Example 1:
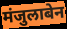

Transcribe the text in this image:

मंजुलाबेन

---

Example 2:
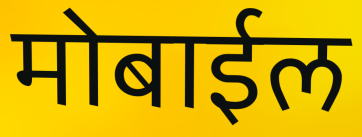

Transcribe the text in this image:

मोबाईल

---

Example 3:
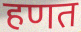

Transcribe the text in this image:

हणत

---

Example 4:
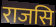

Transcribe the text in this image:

राजसि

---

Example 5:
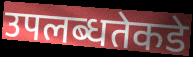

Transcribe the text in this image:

उपलब्धतेकडे